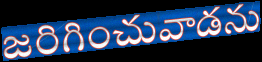
జరిగించువాడను